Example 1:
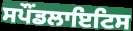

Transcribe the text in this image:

ਸਪੌਂਡਲਾਇਟਿਸ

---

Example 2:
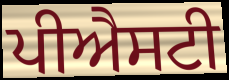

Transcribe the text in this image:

ਪੀਐਸਟੀ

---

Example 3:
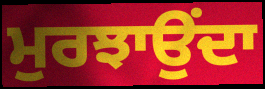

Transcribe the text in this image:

ਮੁਰਝਾਉਂਦਾ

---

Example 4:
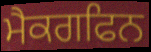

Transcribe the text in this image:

ਮੈਕਗਫਿਨ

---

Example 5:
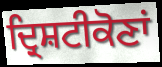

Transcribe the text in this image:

ਦ੍ਰਿਸ਼ਟੀਕੋਣਾਂ